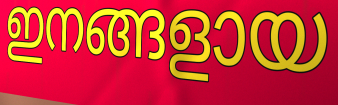
ഇനങ്ങളായ